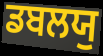
ਡਬਲਯੁ